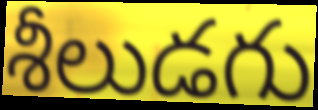
శీలుడగు